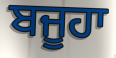
ਬਜੂਹਾ